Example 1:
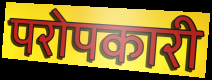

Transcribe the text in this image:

परोपकारी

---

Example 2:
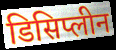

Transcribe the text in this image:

डिसिप्लीन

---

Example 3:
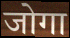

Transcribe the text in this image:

जोगा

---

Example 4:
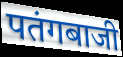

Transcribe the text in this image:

पतंगबाजी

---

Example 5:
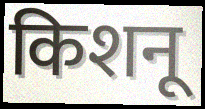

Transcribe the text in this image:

किशनू